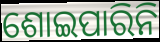
ଶୋଇପାରିନି